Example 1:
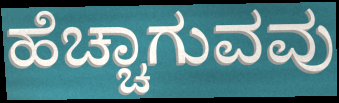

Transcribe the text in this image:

ಹೆಚ್ಚಾಗುವವು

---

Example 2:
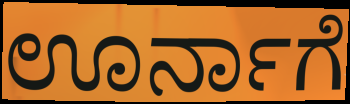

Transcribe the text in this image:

ಊರ್ನಾಗೆ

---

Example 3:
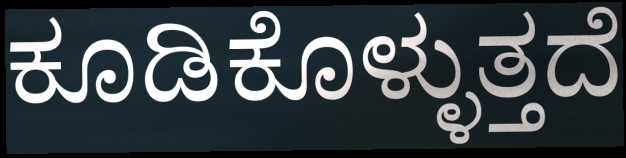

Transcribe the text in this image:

ಕೂಡಿಕೊಳ್ಳುತ್ತದೆ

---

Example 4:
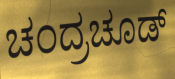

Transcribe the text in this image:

ಚಂದ್ರಚೂಡ್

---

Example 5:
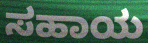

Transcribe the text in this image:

ಸಹಾಯ